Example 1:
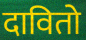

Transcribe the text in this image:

दावितो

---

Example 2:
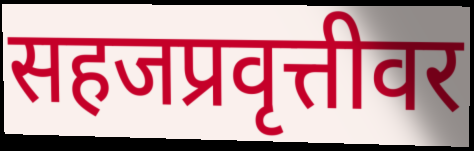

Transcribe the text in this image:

सहजप्रवृत्तीवर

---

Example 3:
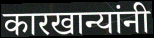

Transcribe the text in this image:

कारखान्यांनी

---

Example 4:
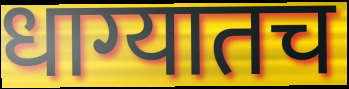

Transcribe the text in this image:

धाग्यातच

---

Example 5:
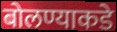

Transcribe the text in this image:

बोलण्याकडे